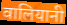
वालियानी